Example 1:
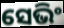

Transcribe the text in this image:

ସେଭିଂ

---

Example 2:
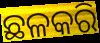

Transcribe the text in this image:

ଛଳକରି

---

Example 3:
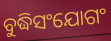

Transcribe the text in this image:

ବୁଦ୍ଧିସଂଯୋଗଂ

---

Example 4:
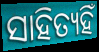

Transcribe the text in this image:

ସାହିତ୍ୟହିଁ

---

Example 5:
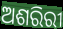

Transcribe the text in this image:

ଅଶରିରୀ